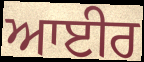
ਆਈਰ